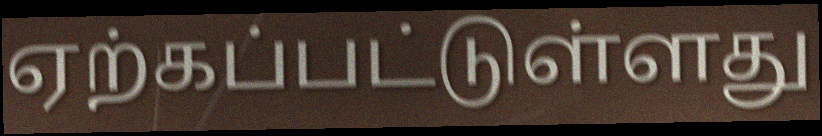
ஏற்கப்பட்டுள்ளது